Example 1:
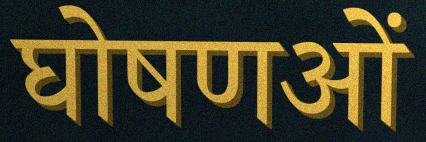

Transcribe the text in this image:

घोषणओं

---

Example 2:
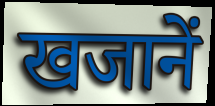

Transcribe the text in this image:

खजानें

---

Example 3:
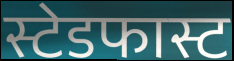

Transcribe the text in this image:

स्टेडफास्ट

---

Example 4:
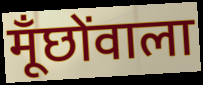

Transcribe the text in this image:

मूँछोंवाला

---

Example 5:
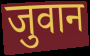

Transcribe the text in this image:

जुवान